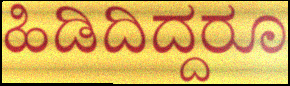
ಹಿಡಿದಿದ್ದರೂ